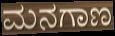
ಮನಗಾಣ